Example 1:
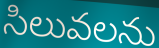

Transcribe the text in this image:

సిలువలను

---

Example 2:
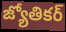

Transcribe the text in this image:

జ్యోతికర్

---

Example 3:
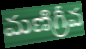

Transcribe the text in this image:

మణిగ్రీవ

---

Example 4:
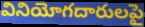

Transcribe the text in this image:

వినియోగదారులపై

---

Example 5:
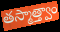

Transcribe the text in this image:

తస్మాత్త్వాం